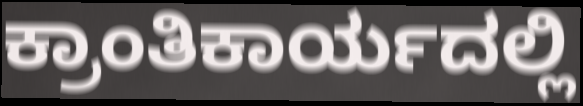
ಕ್ರಾಂತಿಕಾರ್ಯದಲ್ಲಿ